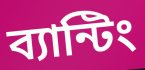
ব্যান্টিং